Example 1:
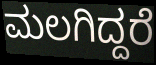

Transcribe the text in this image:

ಮಲಗಿದ್ದರೆ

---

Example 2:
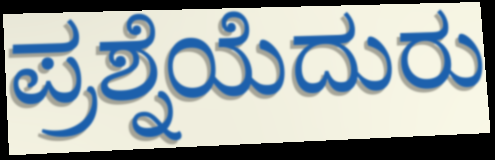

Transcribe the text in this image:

ಪ್ರಶ್ನೆಯೆದುರು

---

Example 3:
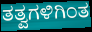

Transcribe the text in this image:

ತತ್ವಗಳಿಗಿಂತ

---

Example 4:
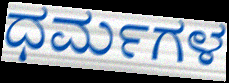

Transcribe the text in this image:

ಧರ್ಮಗಳ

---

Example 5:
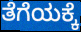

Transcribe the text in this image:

ತೆಗೆಯಕ್ಕೆ